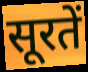
सूरतें